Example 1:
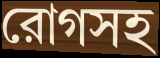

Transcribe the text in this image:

রোগসহ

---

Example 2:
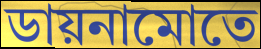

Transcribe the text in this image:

ডায়নামোতে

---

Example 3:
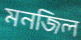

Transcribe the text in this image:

মনজিল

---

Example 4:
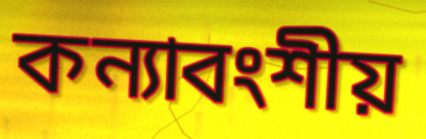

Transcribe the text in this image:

কন্যাবংশীয়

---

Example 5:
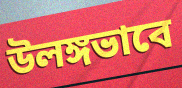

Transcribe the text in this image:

উলঙ্গভাবে